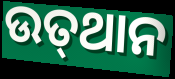
ଉତ୍‌ଥାନ